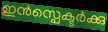
ഇൻസ്പെക്ടർക്കു